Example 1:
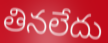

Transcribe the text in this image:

తినలేదు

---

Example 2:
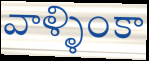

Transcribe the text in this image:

వాళ్ళింకా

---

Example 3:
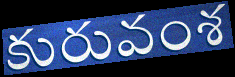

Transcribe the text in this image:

కురువంశ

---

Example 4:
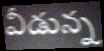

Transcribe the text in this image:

వీడున్న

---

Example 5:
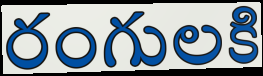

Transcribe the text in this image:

రంగులకి